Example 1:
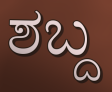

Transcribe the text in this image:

ಶಬ್ದ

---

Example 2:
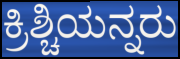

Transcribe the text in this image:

ಕ್ರಿಶ್ಚಿಯನ್ನರು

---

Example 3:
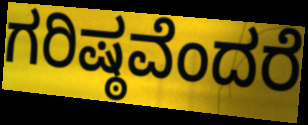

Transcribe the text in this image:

ಗರಿಷ್ಠವೆಂದರೆ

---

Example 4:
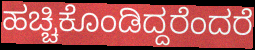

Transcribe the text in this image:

ಹಚ್ಚಿಕೊಂಡಿದ್ದರೆಂದರೆ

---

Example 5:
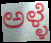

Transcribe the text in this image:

ಅಳ್ಳೆ